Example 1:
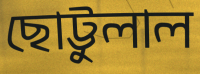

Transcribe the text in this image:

ছোট্টুলাল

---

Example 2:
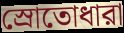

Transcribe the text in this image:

স্রোতোধারা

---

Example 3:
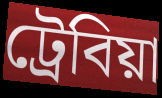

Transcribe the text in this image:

ট্রেবিয়া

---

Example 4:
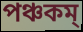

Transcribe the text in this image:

পঞ্চকম্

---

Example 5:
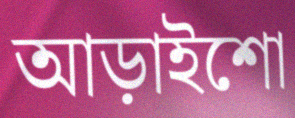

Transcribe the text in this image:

আড়াইশো